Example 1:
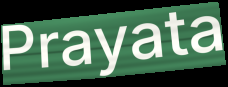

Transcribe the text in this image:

Prayata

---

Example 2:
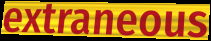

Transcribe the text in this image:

extraneous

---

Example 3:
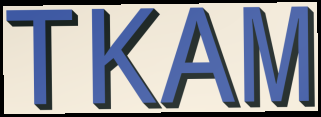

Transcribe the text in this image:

TKAM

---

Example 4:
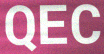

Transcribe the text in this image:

QEC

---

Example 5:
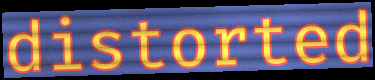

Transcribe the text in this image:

distorted